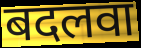
बदलवा